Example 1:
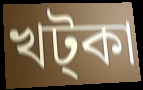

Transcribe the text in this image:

খট্কা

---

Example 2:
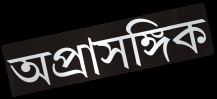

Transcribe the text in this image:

অপ্রাসঙ্গিক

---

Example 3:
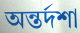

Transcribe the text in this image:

অন্তর্দশা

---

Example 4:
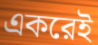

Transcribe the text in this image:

একরেই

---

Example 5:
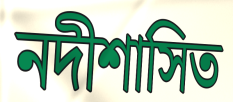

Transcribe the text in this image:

নদীশাসিত